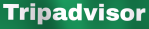
Tripadvisor